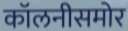
कॉलनीसमोर